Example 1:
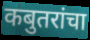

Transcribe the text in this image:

कबुतरांचा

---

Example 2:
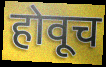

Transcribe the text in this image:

होवूच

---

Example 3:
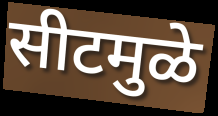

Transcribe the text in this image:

सीटमुळे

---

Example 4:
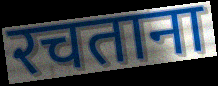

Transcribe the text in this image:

रचताना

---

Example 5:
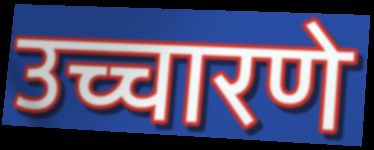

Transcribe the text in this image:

उच्चारणे